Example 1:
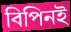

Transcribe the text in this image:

বিপিনই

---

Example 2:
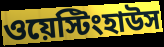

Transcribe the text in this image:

ওয়েস্টিংহাউস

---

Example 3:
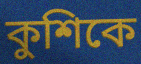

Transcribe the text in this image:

কুশিকে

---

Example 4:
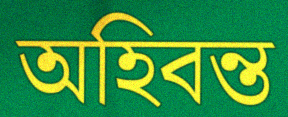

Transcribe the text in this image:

অহিবন্ত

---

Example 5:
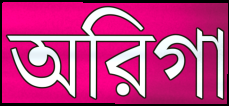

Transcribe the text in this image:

অরিগা